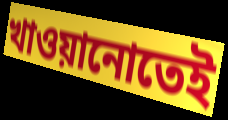
খাওয়ানোতেই